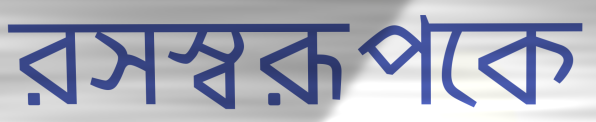
রসস্বরূপকে